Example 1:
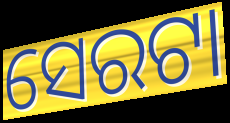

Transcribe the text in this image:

ସେରଟା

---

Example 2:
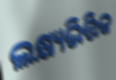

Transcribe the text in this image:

ଲକ୍ଷ୍ୟଭିତ୍ତିକ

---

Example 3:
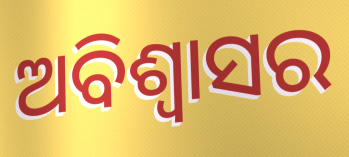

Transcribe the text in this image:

ଅବିଶ୍ବାସର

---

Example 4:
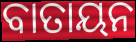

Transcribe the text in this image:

ବାତାୟନ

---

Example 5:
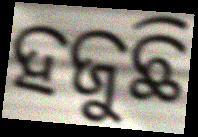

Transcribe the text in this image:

ହଜୁଛି